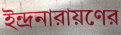
ইন্দ্রনারায়ণের